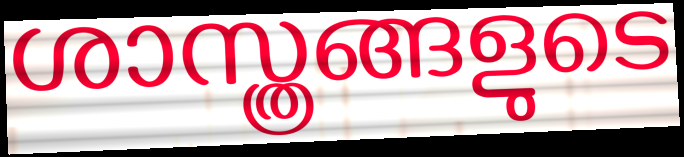
ശാസ്ത്രങ്ങളുടെ